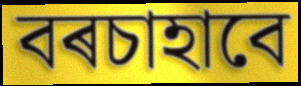
বৰচাহাবে